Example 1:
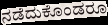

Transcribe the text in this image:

ನಡೆದುಕೊಂಡರೂ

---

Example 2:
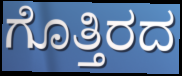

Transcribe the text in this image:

ಗೊತ್ತಿರದ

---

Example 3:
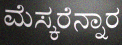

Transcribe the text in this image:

ಮೆಸ್ಕರೆನ್ನಾರ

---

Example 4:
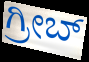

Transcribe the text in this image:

ಗ್ರೀಬ್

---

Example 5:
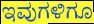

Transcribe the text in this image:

ಇವುಗಳಿಗೂ